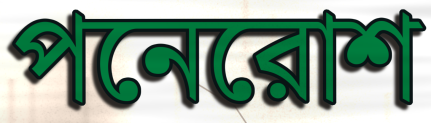
পনেরোশ